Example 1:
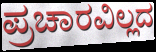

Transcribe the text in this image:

ಪ್ರಚಾರವಿಲ್ಲದ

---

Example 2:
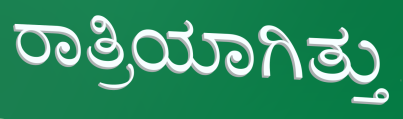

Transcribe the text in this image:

ರಾತ್ರಿಯಾಗಿತ್ತು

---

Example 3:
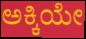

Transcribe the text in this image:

ಅಕ್ಕಿಯೇ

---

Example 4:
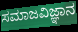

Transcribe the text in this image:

ಸಮಾಜವಿಜ್ಞಾನ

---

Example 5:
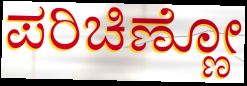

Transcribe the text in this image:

ಪರಿಚಿಣ್ಣೋ